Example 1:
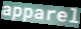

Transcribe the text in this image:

apparel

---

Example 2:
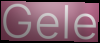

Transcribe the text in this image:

Gele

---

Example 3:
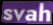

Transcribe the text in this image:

svah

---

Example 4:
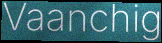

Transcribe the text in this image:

Vaanchig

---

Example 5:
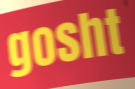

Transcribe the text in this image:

gosht